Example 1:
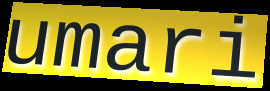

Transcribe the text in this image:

umari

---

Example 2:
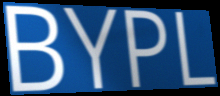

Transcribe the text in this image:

BYPL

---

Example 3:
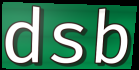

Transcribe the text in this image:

dsb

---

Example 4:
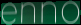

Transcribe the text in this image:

enno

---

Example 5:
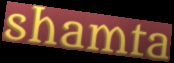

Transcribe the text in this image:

shamta